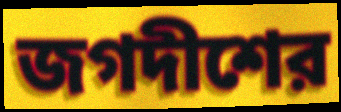
জগদীশের